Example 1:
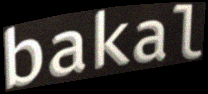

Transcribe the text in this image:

bakal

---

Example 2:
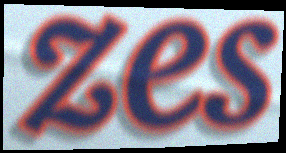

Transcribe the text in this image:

zes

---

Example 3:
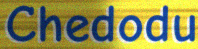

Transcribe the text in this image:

Chedodu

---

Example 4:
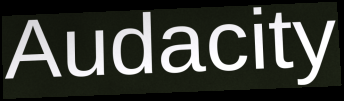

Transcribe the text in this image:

Audacity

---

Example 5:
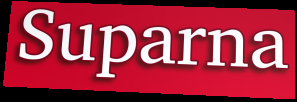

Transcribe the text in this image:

Suparna